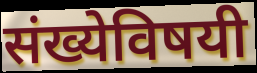
संख्येविषयी